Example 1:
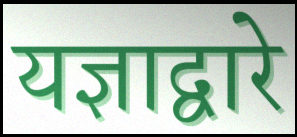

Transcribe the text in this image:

यज्ञाद्वारे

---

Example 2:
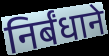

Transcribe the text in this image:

निर्बंधाने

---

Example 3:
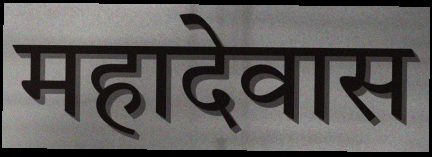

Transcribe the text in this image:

महादेवास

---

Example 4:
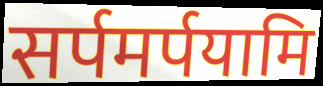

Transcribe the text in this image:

सर्पमर्पयामि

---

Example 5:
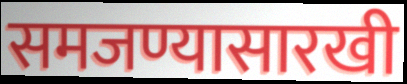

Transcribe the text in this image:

समजण्यासारखी